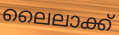
ലൈലാക്ക്